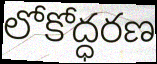
లోకోద్ధరణ